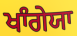
ਖਾੰਗੇਯਾ